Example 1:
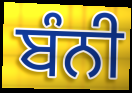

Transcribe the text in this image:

ਬੰਨੀ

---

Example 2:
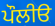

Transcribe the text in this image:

ਪੌਲੀੳ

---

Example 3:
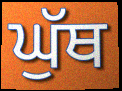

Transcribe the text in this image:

ਘੁੱਥ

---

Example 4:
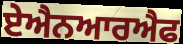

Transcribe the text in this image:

ਏਐਨਆਰਐਫ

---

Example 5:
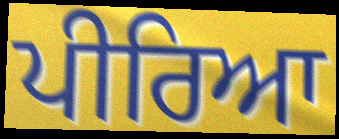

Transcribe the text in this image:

ਪੀਰਿਆ